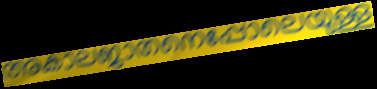
അകാലജാതനെപ്പോലെയുള്ള